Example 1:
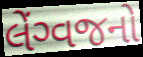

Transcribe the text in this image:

લેંગ્વજનો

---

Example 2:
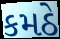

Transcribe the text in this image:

કમઠે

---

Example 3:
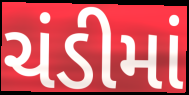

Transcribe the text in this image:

ચંડીમાં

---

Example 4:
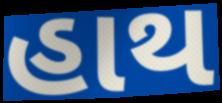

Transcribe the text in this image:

હાથ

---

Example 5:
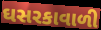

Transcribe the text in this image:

ઘસરકાવાળી